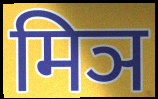
मिञ